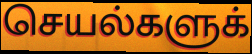
செயல்களுக்